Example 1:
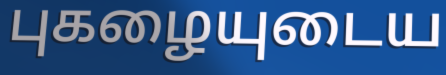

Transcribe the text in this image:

புகழையுடைய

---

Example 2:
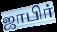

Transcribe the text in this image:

ஜாபிர்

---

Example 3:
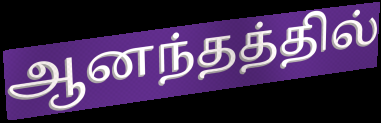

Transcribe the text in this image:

ஆனந்தத்தில்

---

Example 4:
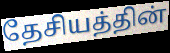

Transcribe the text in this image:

தேசியத்தின்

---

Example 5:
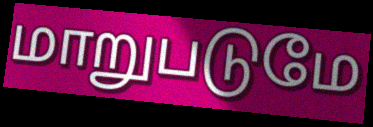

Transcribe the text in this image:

மாறுபடுமே